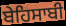
ਬੇਹਿਸਾਬੀ